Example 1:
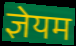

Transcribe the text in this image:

ज्ञेयम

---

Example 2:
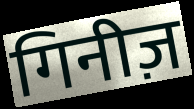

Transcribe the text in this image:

गिनीज़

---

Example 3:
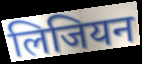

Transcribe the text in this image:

लिजियन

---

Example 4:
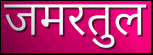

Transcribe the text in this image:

जमरतुल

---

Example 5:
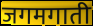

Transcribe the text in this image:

जगमगाती